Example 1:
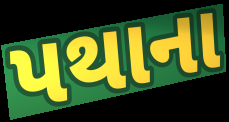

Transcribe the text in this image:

પથાના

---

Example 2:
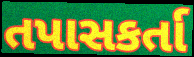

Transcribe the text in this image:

તપાસકર્તા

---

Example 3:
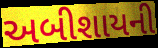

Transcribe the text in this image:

અબીશાયની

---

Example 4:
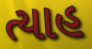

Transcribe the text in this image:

ત્યાહ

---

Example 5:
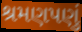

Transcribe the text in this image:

શ્રમણપણું